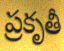
ప్రకృతీ